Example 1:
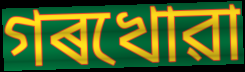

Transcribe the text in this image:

গৰখোৱা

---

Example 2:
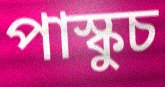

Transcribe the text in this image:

পাস্কুচ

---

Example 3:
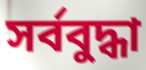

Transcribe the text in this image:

সৰ্ববুদ্ধা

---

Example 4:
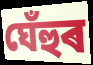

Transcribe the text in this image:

ঘেঁহুৰ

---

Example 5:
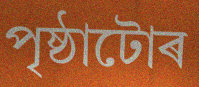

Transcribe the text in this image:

পৃষ্ঠাটোৰ